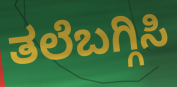
ತಲೆಬಗ್ಗಿಸಿ